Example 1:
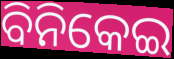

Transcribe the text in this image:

ବିନିକେଇ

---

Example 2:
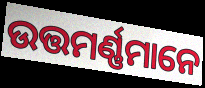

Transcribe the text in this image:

ଉତ୍ତମର୍ଣ୍ଣମାନେ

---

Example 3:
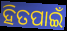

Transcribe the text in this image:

ହିତପାଇଁ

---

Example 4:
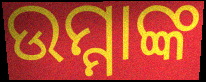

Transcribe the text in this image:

ଉମ୍ମାଙ୍କ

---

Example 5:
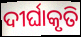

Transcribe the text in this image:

ଦୀର୍ଘାକୃତି